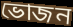
ভোজন